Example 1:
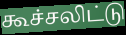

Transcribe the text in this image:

கூச்சலிட்டு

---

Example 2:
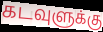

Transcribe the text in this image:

கடவுளுக்கு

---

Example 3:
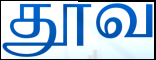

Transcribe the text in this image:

தூவ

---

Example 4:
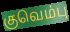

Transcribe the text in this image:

குவெம்பு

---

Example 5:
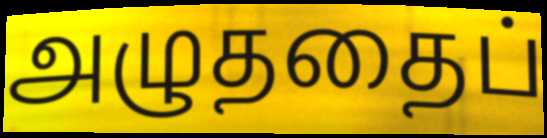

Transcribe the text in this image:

அழுததைப்